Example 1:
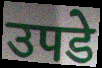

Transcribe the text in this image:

उपडे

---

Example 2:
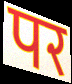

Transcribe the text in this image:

पर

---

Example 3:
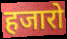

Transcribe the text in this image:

हजारो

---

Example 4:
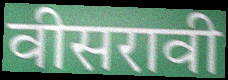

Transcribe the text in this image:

वीसरावी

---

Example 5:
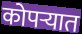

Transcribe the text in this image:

कोपर्‍यात